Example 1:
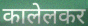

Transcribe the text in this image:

कालेलकर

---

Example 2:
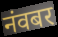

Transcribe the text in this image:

नंवबर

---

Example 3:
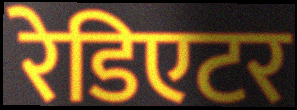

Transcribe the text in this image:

रेडिएटर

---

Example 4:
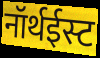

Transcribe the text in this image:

नॉर्थईस्‍ट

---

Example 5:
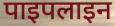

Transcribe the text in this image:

पाइपलाइन